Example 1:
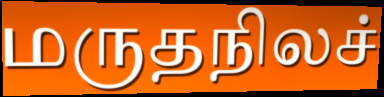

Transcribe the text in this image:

மருதநிலச்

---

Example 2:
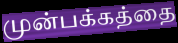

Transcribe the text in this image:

முன்பக்கத்தை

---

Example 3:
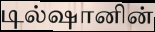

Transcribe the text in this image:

டில்ஷானின்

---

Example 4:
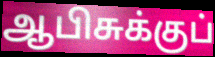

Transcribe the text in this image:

ஆபிசுக்குப்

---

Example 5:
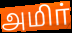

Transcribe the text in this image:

அமிர்